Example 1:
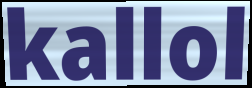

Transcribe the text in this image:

kallol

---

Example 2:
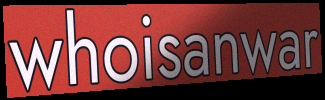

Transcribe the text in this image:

whoisanwar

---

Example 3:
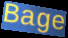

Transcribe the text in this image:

Bage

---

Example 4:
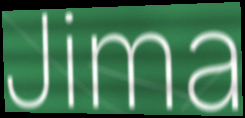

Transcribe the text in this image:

Jima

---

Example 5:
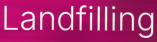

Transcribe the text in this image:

Landfilling